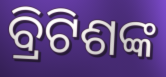
ବ୍ରିଟିଶଙ୍କ